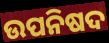
ଉପନିଷଦ